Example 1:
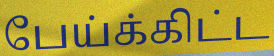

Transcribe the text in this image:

பேய்க்கிட்ட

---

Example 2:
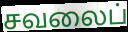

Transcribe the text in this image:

சவலைப்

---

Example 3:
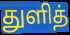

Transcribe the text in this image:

துளித்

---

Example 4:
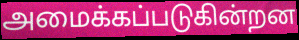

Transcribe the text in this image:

அமைக்கப்படுகின்றன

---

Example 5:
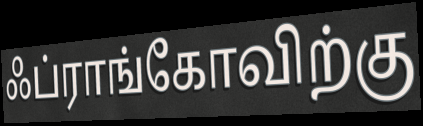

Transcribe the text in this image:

ஃப்ராங்கோவிற்கு